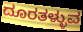
ದೂರತಳ್ಳುವ